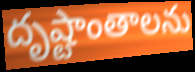
దృష్టాంతాలను